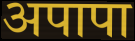
अपापा